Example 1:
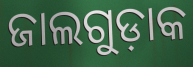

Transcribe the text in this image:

ଜାଲଗୁଡ଼ାକ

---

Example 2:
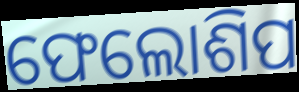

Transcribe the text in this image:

ଫେଲୋଶିପ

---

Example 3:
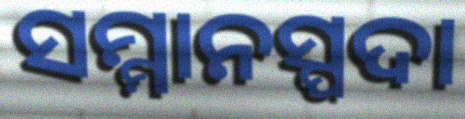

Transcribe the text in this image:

ସମ୍ମାନସ୍ପଦା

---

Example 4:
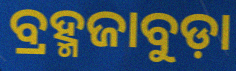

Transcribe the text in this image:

ବ୍ରହ୍ମଜାବୁଡ଼ା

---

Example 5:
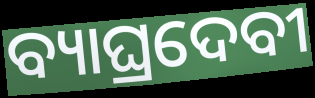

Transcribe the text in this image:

ବ୍ୟାଘ୍ରଦେବୀ